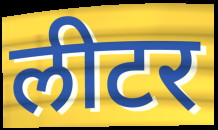
लीटर